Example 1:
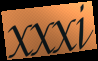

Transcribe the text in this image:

xxxi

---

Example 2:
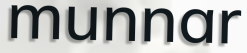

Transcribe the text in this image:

munnar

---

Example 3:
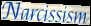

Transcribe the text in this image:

Narcissism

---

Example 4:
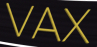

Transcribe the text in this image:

VAX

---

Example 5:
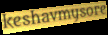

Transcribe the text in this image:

keshavmysore